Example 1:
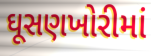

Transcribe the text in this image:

ઘૂસણખોરીમાં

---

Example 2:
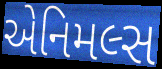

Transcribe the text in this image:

એનિમલ્સ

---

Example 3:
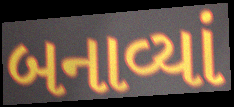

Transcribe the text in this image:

બનાવ્યાં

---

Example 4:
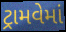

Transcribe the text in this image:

ટ્રામવેમાં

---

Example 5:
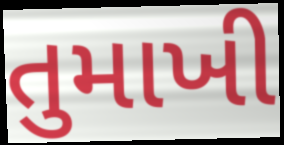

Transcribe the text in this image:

તુમાખી